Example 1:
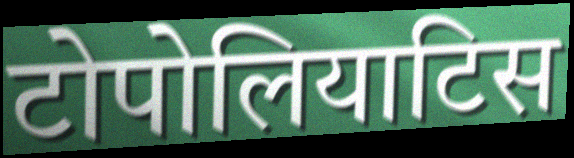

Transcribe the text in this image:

टोपोलियाटिस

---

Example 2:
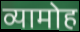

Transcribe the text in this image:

व्यामोह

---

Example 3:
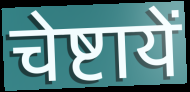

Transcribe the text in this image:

चेष्टायें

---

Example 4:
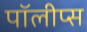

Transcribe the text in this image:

पॉलीप्स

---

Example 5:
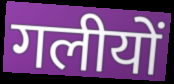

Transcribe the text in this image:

गलीयों